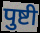
पुष्टी